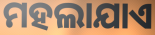
ମହଲାଯାଏ